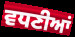
ਵਧਣੀਆਂ